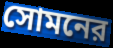
সোমনের